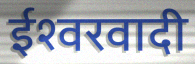
ईश्वरवादी